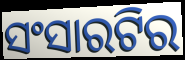
ସଂସାରଟିର